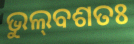
ଭୁଲ୍‌ବଶତଃ